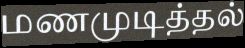
மணமுடித்தல்